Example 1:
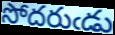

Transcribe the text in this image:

సోదరుఁడు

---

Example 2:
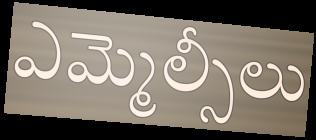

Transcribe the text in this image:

ఎమ్మెల్సీలు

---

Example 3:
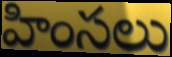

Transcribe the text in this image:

హింసలు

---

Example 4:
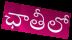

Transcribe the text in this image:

ఛాతీలో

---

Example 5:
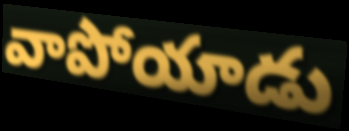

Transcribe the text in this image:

వాపోయాడు